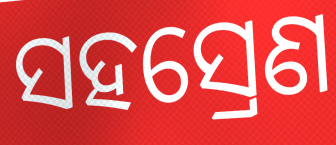
ସହସ୍ରେଣ